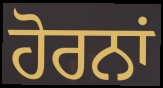
ਹੋਰਨਾਂ